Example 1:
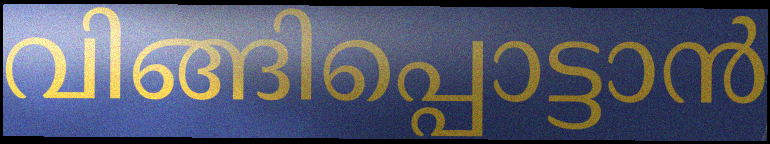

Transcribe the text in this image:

വിങ്ങിപ്പൊട്ടാൻ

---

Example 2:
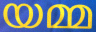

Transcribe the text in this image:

യമ്മ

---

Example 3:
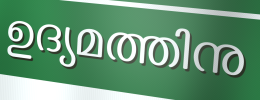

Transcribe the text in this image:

ഉദ്യമത്തിനു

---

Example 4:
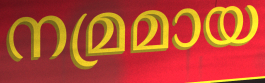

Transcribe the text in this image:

നമ്രമായ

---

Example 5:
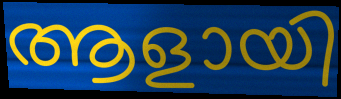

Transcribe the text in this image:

ആളായി